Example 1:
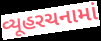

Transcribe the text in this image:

વ્યૂહરચનામાં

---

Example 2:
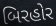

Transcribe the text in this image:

બિરહોર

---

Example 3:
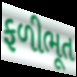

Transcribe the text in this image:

ફળીભૂત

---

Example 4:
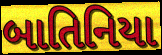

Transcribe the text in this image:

બાતિનિયા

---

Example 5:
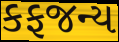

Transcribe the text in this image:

કફજન્ય